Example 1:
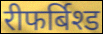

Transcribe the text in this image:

रीफर्बिश्ड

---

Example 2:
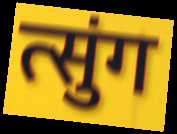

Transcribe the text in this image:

त्सुंग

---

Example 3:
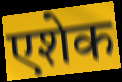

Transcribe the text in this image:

एशेक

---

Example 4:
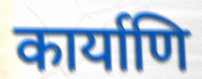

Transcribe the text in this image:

कार्याणि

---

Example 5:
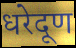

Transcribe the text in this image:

धरेदूण